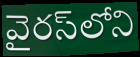
వైరస్‌లోని